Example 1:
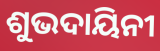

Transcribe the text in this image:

ଶୁଭଦାୟିନୀ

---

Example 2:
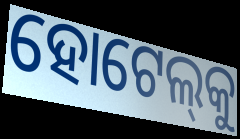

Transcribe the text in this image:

ହୋଟେଲ୍‌କୁ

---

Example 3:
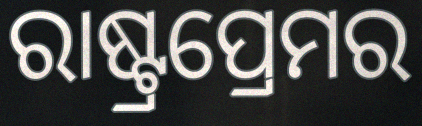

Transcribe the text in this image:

ରାଷ୍ଟ୍ରପ୍ରେମର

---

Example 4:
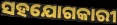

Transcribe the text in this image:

ସହଯୋଗକାରୀ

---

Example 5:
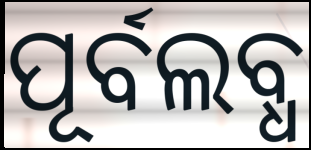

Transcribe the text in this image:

ପୂର୍ବଲବ୍ଧ